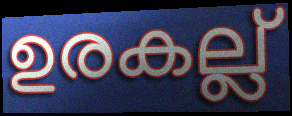
ഉരകല്ല്